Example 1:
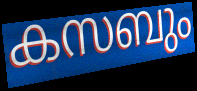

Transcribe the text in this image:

കസബും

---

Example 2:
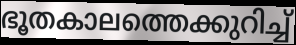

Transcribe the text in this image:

ഭൂതകാലത്തെക്കുറിച്ച്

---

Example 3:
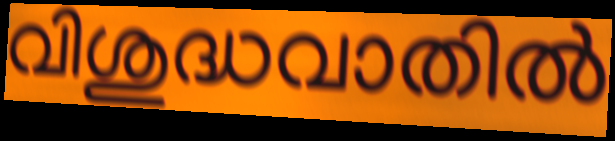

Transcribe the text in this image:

വിശുദ്ധവാതിൽ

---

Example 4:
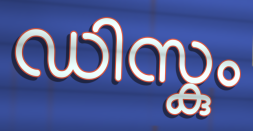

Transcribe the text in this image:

ഡിസ്കും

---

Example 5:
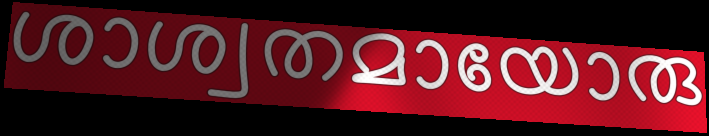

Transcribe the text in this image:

ശാശ്വതമായോരു